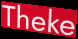
Theke